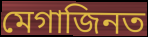
মেগাজিনত